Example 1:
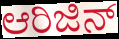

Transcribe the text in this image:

ಆರಿಜಿನ್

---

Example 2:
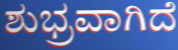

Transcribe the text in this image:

ಶುಭ್ರವಾಗಿದೆ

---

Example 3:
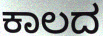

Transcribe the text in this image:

ಕಾಲದ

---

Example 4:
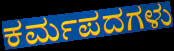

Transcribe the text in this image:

ಕರ್ಮಪದಗಳು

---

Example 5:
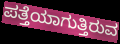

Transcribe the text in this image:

ಪತ್ತೆಯಾಗುತ್ತಿರುವ